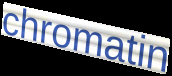
chromatin